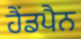
ਹੈਂਡਪੈਨ